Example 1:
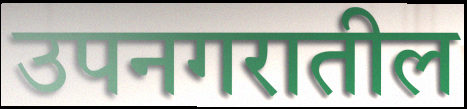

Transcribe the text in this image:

उपनगरातील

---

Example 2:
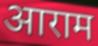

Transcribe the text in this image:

आराम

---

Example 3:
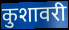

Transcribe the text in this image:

कुशावरी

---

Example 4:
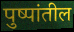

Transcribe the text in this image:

पुष्पांतील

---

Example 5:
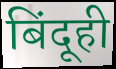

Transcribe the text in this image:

बिंदूही